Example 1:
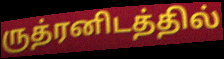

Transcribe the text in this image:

ருத்ரனிடத்தில்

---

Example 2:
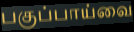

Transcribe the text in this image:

பகுப்பாய்வை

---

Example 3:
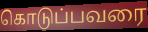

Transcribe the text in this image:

கொடுப்பவரை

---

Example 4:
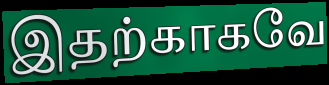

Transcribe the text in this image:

இதற்காகவே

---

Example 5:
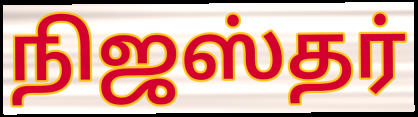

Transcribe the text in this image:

நிஜஸ்தர்